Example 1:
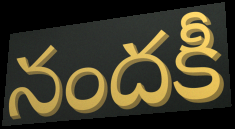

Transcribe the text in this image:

నందకీ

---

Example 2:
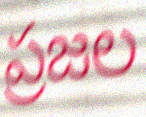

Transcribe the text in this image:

ప్రజల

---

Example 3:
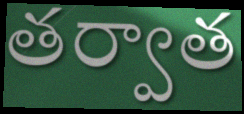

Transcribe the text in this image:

తర్వాత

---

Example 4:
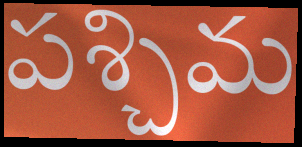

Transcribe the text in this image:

పశ్చిమ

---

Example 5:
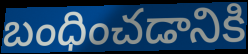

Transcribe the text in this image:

బంధించడానికి